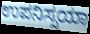
ಉಪನಿಸ್ಸಯಾ